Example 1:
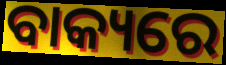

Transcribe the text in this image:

ବାକ୍ୟରେ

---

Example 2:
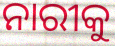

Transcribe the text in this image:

ନାରୀକୁ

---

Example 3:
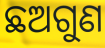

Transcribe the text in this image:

ଛଅଗୁଣ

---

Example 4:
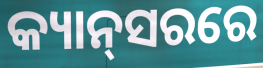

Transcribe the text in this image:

କ୍ୟାନ୍‌ସରରେ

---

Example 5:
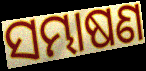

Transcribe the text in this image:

ସମ୍ଭାଷଣ